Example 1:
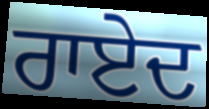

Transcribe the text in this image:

ਰਾਏਦ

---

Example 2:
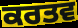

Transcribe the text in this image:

ਕਰਤਵ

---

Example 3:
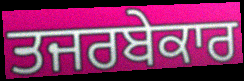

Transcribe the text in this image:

ਤਜਰਬੇਕਾਰ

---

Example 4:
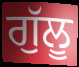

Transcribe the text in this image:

ਗੁੱਲੂ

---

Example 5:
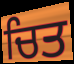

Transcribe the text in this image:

ਚਿਤ